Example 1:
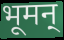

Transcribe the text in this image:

भूमन्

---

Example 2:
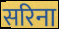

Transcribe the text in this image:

सरिना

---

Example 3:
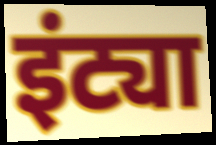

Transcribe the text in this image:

इंट्या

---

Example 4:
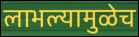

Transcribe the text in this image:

लाभल्यामुळेच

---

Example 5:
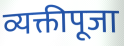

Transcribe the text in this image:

व्यक्तीपूजा